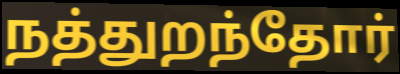
நத்துறந்தோர்